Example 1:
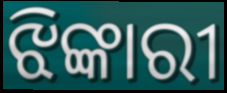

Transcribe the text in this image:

ଝିଙ୍କାରୀ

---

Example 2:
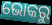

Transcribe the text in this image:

ଭୋକରୁ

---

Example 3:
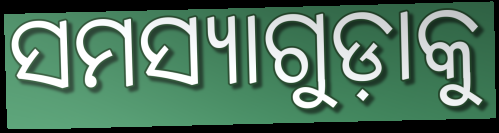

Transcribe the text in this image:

ସମସ୍ୟାଗୁଡ଼ାକୁ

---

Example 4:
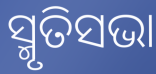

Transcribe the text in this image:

ସ୍ମୃତିସଭା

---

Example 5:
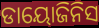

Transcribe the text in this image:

ଡାୟୋଜିନିସ